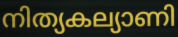
നിത്യകല്യാണി